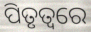
ପିତୃତ୍ୱରେ